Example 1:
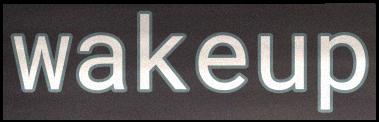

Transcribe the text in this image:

wakeup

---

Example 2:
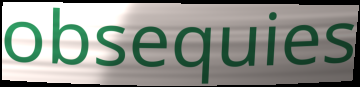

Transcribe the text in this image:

obsequies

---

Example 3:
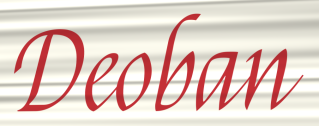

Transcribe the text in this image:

Deoban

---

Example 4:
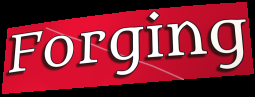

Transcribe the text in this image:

Forging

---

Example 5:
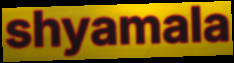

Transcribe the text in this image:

shyamala